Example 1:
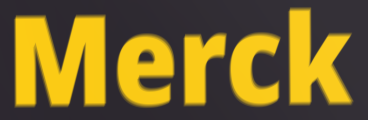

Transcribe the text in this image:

Merck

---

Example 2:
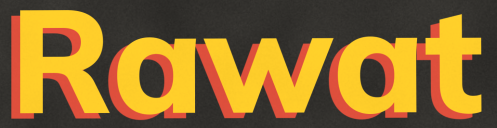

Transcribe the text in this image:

Rawat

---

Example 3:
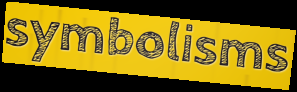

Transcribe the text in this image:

symbolisms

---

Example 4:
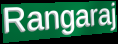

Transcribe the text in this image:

Rangaraj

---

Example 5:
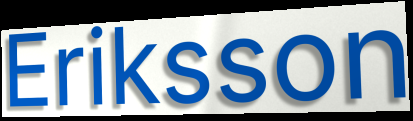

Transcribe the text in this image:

Eriksson